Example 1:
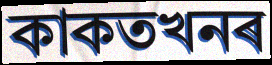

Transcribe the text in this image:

কাকতখনৰ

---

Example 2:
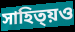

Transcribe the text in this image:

সাহিত্য়ও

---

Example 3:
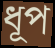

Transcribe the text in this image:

ধূপ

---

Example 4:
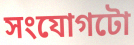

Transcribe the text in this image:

সংযোগটো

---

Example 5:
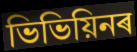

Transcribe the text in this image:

ভিভিয়িনৰ